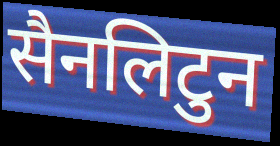
सैनलिटुन